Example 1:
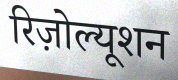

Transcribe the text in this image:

रिज़ोल्यूशन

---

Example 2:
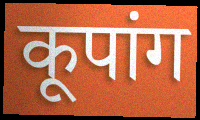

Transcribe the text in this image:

कूपांग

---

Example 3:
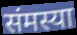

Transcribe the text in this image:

संमस्या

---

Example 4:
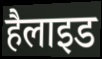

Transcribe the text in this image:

हैलाइड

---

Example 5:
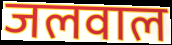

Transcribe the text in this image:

जलवाल